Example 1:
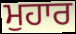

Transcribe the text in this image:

ਮੁਹਾਰ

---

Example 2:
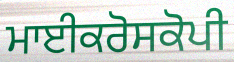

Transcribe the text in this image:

ਮਾਈਕਰੋਸਕੋਪੀ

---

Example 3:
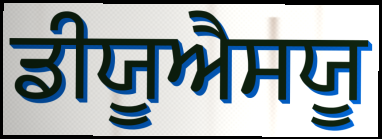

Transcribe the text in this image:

ਡੀਯੂਐਸਯੂ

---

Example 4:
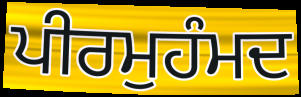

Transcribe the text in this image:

ਪੀਰਮੁਹੰਮਦ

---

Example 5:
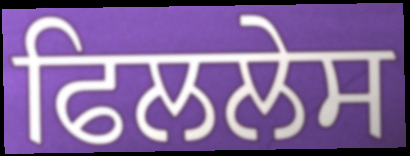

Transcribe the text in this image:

ਫਿਲਲੇਸ